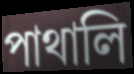
পাথালি